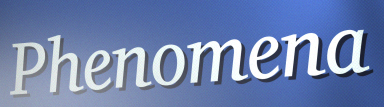
Phenomena